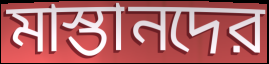
মাস্তানদের